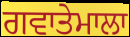
ਗਵਾਤੇਮਾਲਾ